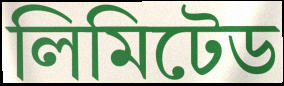
লিমিটেড